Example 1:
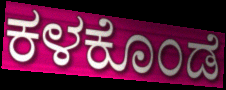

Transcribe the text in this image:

ಕಳಕೊಂಡೆ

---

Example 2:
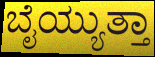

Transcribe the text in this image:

ಬೈಯ್ಯುತ್ತಾ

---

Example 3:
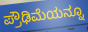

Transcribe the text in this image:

ಪ್ರೌಢಿಮೆಯನ್ನೂ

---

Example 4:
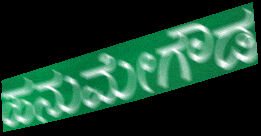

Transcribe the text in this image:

ಹನುಮೇಗೌಡ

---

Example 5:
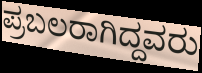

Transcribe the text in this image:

ಪ್ರಬಲರಾಗಿದ್ದವರು